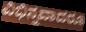
ವಿಭಿನ್ನವಾದರೂ